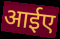
आईए